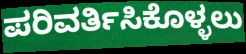
ಪರಿವರ್ತಿಸಿಕೊಳ್ಳಲು